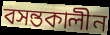
বসন্তকালীন